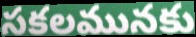
సకలమునకు